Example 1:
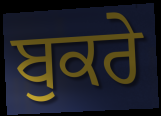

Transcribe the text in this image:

ਬੁਕਰੇ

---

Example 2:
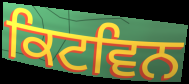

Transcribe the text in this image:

ਕਿਟਵਿਨ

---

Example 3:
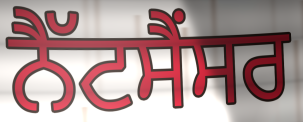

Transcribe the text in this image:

ਨੈੱਟਸੈਂਸਰ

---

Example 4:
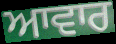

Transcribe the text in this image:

ਆਵਾਰ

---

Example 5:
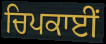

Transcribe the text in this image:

ਚਿਪਕਾਈਂ